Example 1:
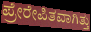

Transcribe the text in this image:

ಪ್ರೇರೇಪಿತವಾಗಿತ್ತು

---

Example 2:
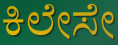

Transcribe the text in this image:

ಕಿಲೇಸೇ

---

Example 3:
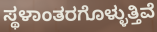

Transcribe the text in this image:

ಸ್ಥಳಾಂತರಗೊಳ್ಳುತ್ತಿವೆ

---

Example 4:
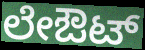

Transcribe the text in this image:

ಲೇಔಟ್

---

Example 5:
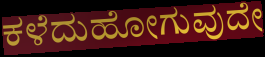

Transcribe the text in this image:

ಕಳೆದುಹೋಗುವುದೇ